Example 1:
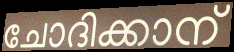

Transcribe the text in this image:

ചോദിക്കാന്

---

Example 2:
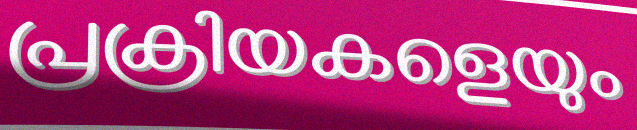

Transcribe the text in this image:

പ്രക്രിയകളെയും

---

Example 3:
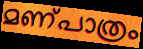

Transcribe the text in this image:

മണ്പാത്രം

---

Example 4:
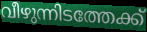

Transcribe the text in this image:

വീഴുന്നിടത്തേക്ക്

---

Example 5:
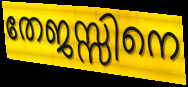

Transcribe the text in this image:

തേജസ്സിനെ